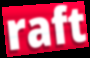
raft